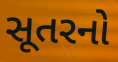
સૂતરનો